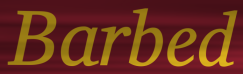
Barbed